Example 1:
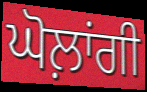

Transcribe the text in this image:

ਘੋਲ਼ਾਂਗੀ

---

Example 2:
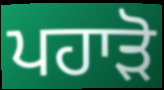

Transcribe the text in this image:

ਪਹਾੜੋ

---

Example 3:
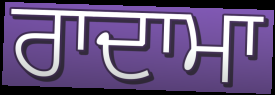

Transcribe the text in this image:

ਰਾਦਾਮਾ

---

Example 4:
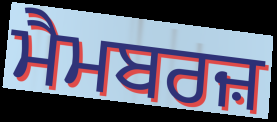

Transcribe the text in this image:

ਮੈਮਬਰਜ਼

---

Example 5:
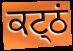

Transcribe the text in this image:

ਕਟ੍ਠਂ